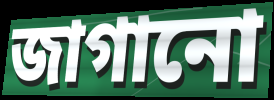
জাগানো